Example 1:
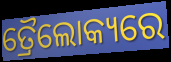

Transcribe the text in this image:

ତ୍ରୈଲୋକ୍ୟରେ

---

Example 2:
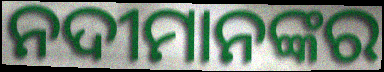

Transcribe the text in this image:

ନଦୀମାନଙ୍କର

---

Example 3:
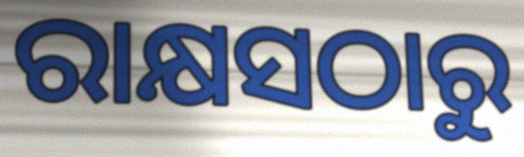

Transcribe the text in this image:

ରାକ୍ଷସଠାରୁ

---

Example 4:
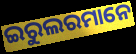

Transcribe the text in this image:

ଇରୁଲରମାନେ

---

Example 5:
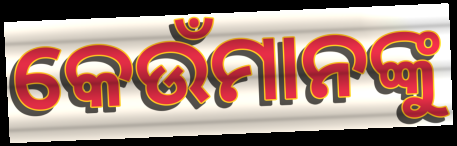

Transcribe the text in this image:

କେଉଁମାନଙ୍କୁ